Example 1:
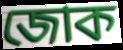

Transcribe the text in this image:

জোক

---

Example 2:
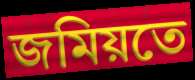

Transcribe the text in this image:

জমিয়তে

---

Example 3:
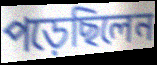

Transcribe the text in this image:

পড়েছিলেন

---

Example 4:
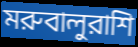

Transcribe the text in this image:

মরুবালুরাশি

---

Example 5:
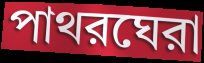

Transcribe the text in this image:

পাথরঘেরা